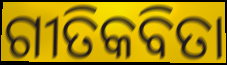
ଗୀତିକବିତା